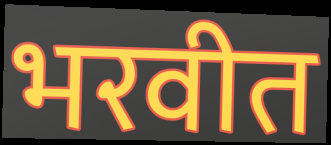
भरवीत